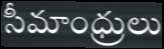
సీమాంధ్రులు